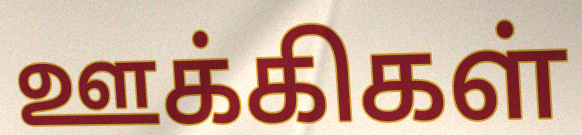
ஊக்கிகள்